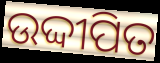
ଉଦ୍ଦୀପିତ